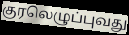
குரலெழுப்புவது